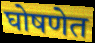
घोषणेत